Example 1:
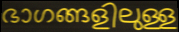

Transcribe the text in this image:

ഭാഗങ്ങളിലുള്ള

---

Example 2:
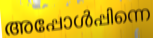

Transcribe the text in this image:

അപ്പോൾപ്പിന്നെ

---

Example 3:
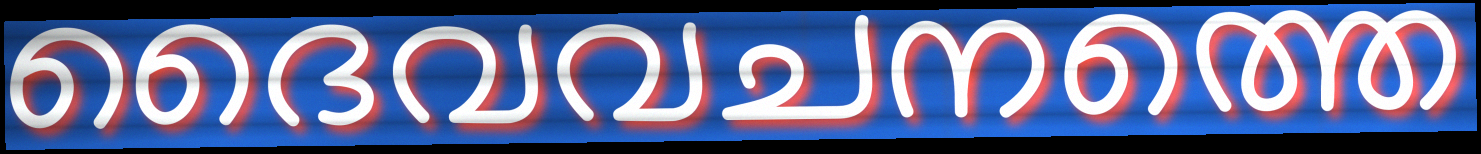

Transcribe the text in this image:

ദൈവവചനത്തെ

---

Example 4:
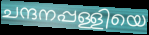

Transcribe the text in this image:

ചന്ദനപ്പള്ളിയെ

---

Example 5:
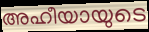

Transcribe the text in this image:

അഹീയായുടെ